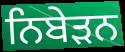
ਨਿਬੇੜਨ